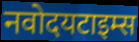
नवोदयटाइम्स